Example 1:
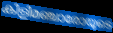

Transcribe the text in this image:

കിളിമഞ്ചാരോയുടെ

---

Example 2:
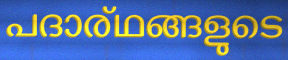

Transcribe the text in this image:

പദാര്ഥങ്ങളുടെ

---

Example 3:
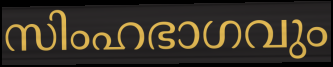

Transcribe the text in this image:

സിംഹഭാഗവും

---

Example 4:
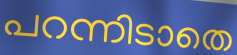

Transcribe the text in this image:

പറന്നിടാതെ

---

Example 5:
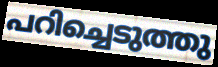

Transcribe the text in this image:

പറിച്ചെടുത്തു